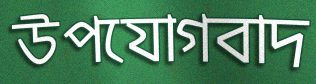
উপযোগবাদ